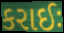
કરાઈઃ